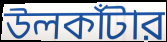
উলকাঁটার